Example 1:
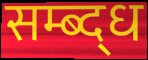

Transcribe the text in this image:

सम्ब्द्ध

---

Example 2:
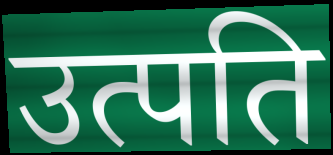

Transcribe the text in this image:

उत्पति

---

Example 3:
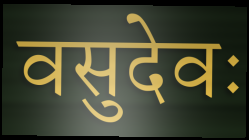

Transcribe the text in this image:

वसुदेवः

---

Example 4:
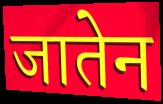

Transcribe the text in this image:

जातेन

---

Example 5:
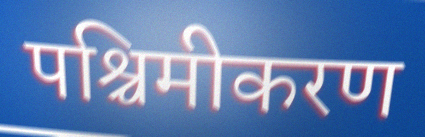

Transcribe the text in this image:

पश्चिमीकरण